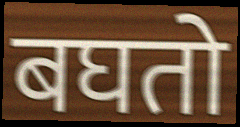
बघतो